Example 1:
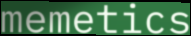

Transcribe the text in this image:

memetics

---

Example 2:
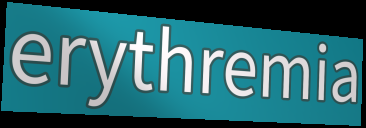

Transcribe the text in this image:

erythremia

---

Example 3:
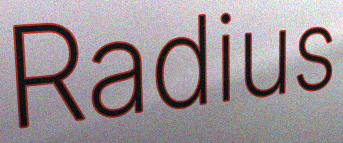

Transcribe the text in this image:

Radius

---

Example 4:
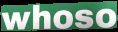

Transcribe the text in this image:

whoso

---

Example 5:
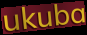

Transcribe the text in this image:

ukuba